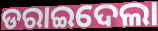
ଡରାଇଦେଲା